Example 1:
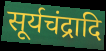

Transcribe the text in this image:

सूर्यचंद्रादि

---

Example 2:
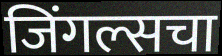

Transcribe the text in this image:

जिंगल्सचा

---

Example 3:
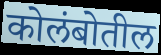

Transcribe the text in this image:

कोलंबोतील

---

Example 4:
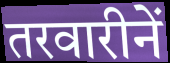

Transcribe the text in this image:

तरवारीनें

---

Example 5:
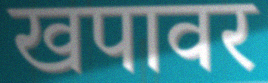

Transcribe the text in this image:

खपावर